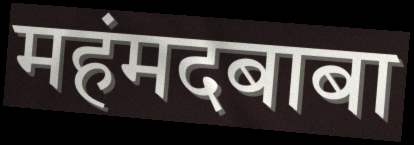
महंमदबाबा